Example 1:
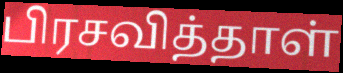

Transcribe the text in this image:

பிரசவித்தாள்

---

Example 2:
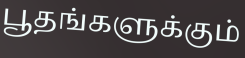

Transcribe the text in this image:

பூதங்களுக்கும்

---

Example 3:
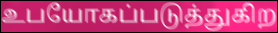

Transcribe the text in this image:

உபயோகப்படுத்துகிற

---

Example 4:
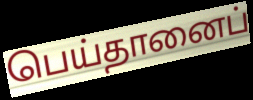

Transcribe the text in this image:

பெய்தானைப்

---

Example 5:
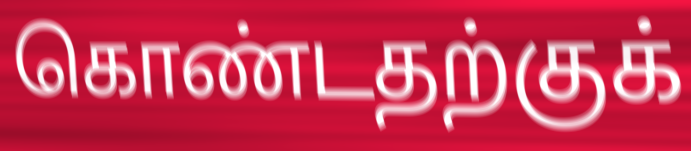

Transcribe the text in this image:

கொண்டதற்குக்